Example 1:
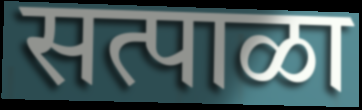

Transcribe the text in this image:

सत्पाळा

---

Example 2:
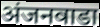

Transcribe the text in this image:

अंजनवाडा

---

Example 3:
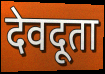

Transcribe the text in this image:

देवदूता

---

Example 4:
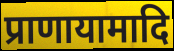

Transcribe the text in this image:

प्राणायामादि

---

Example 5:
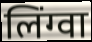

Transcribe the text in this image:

लिंग्वा